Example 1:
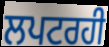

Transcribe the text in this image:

ਲਪਟਰਹੀ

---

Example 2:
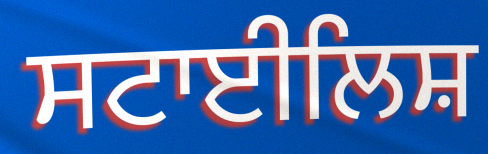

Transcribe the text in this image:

ਸਟਾਈਲਿਸ਼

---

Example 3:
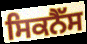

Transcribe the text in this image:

ਸਿਕਨੈੱਸ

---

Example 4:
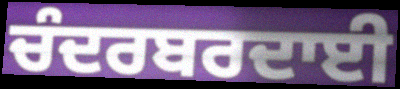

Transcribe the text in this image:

ਚੰਦਰਬਰਦਾਈ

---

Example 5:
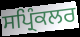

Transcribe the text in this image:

ਸਪ੍ਰਿੰਕਲਰ